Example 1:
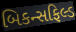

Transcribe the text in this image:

બિકન્સફિલ્ડ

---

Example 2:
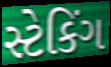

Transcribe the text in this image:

સ્ટેકિંગ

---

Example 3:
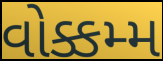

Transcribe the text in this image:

વોક્કમ્મ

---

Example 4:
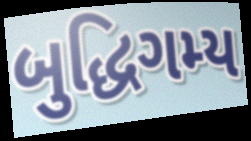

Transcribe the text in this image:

બુદ્ધિગમ્ય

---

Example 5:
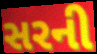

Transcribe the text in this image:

સરની